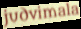
judvimala